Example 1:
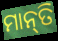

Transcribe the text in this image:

ମାନ୍‌ତି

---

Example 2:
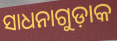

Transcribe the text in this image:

ସାଧନାଗୁଡ଼ାକ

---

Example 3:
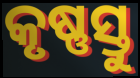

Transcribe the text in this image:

କୃଷ୍ଣସ୍ତୁ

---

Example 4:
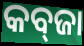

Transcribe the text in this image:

କବ୍‍ଜା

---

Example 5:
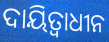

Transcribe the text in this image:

ଦାୟିତ୍ଵାଧୀନ